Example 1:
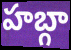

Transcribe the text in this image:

హబ్గా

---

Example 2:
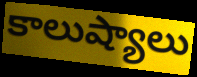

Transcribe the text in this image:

కాలుష్యాలు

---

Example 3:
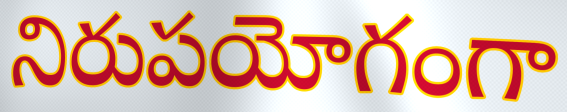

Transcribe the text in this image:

నిరుపయోగంగా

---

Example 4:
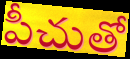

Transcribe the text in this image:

పీచుతో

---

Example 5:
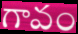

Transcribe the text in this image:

గావం